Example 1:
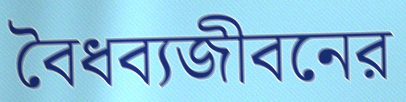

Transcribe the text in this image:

বৈধব্যজীবনের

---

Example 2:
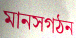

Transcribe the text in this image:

মানসগঠন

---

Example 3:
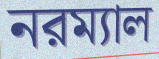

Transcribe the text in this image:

নরম্যাল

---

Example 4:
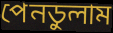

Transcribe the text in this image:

পেনডুলাম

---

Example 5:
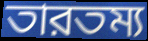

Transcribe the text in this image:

তারতম্য